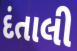
દંતાલી